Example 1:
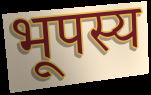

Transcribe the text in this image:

भूपस्य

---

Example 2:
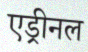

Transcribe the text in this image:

एड्रीनल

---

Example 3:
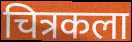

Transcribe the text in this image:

चित्रकला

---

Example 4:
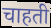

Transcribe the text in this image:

चाहती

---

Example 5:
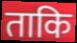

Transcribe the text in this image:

ताकि